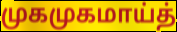
முகமுகமாய்த்